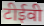
टीईवी